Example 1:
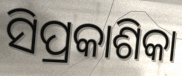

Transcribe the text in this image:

ସିପ୍ରକାଶିକା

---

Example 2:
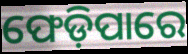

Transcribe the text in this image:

ଫେଡ଼ିପାରେ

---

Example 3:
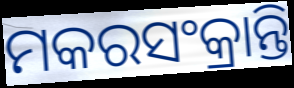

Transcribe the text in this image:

ମକରସଂକ୍ରାନ୍ତି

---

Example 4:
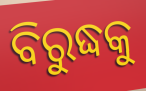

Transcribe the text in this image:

ବିରୁଦ୍ଧକୁ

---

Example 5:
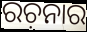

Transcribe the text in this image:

ରଚ଼ନାର